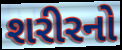
શરીરનો